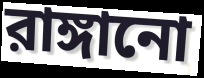
রাঙ্গানো